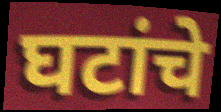
घटांचे